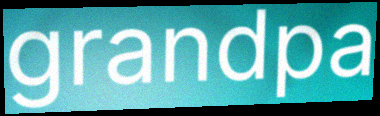
grandpa